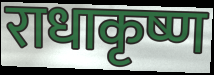
राधाकृष्ण